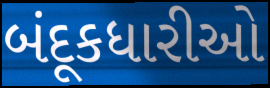
બંદૂકધારીઓ